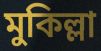
মুকিল্লা